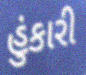
હુંકારી